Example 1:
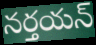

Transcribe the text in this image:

నర్తయన్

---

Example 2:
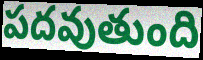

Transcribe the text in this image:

పదవుతుంది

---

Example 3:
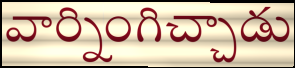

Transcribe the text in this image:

వార్నింగిచ్చాడు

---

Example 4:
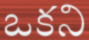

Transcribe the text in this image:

ఒకని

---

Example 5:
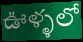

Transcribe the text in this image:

ఊళ్ళలో